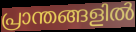
പ്രാന്തങ്ങളിൽ